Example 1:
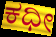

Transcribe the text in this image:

ಕಧೀ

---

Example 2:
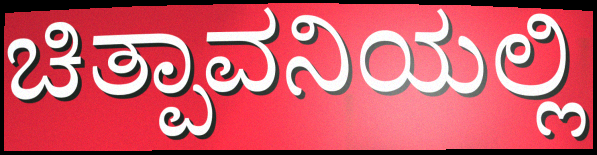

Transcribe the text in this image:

ಚಿತ್ಪಾವನಿಯಲ್ಲಿ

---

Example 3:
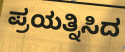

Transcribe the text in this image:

ಪ್ರಯತ್ನಿಸಿದ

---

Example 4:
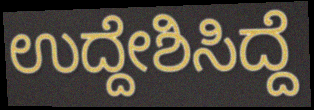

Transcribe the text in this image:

ಉದ್ದೇಶಿಸಿದ್ದೆ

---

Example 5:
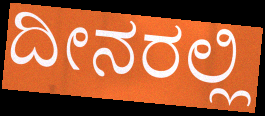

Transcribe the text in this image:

ದೀನರಲ್ಲಿ